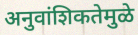
अनुवांशिकतेमुळे